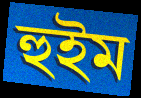
হুইম